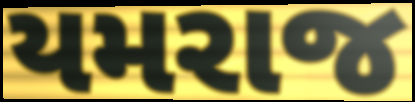
યમરાજ